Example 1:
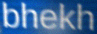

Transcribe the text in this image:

bhekh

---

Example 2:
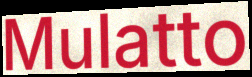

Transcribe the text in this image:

Mulatto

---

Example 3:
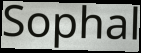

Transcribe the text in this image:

Sophal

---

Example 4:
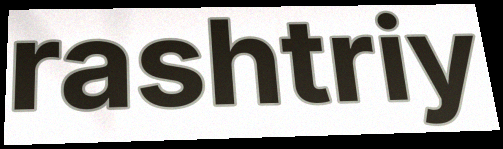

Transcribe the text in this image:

rashtriy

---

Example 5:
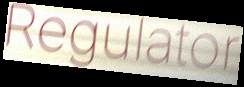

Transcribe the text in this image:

Regulator